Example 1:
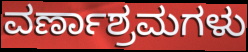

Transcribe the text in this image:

ವರ್ಣಾಶ್ರಮಗಳು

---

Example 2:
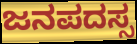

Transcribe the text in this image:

ಜನಪದಸ್ಸ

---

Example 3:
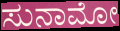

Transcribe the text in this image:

ಸುನಾಮೋ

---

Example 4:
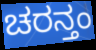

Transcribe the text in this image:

ಚರನ್ತಂ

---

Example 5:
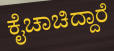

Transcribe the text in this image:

ಕೈಚಾಚಿದ್ದಾರೆ